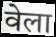
वेला